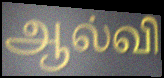
ஆல்வி